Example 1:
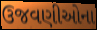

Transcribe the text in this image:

ઉજવણીઓના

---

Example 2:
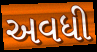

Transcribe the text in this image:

અવધી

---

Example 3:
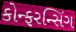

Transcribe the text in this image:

કોન્ફરન્સિંગ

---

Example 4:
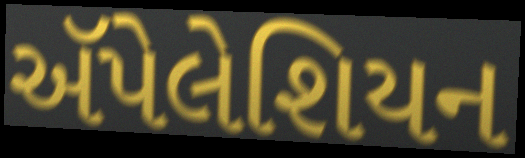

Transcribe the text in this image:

ઍપેલેશિયન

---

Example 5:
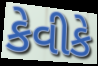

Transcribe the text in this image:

કેવીકે